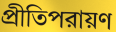
প্রীতিপরায়ণ